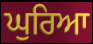
ਘੁਰਿਆ